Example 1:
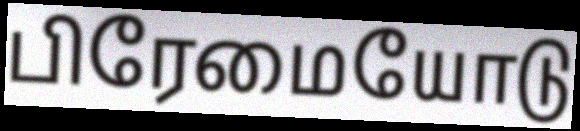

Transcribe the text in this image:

பிரேமையோடு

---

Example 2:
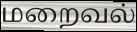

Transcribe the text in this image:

மறைவல்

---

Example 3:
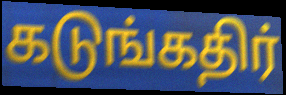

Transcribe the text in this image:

கடுங்கதிர்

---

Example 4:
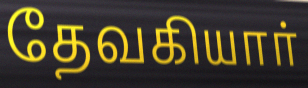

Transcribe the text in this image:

தேவகியார்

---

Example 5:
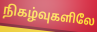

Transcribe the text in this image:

நிகழ்வுகளிலே